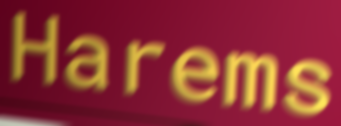
Harems